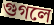
গুগলে